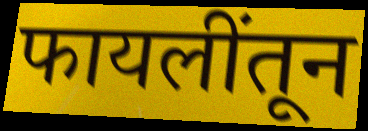
फायलींतून